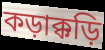
কড়াক্কড়ি